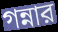
গন্নার